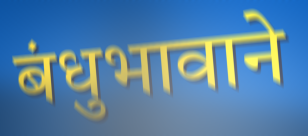
बंधुभावाने